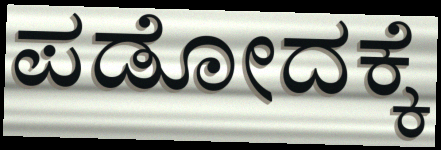
ಪಡೋದಕ್ಕೆ